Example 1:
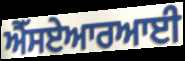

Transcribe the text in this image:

ਐੱਸਏਆਰਆਈ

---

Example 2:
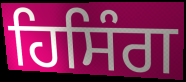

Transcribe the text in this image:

ਹਿਸਿੰਗ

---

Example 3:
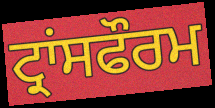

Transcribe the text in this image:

ਟ੍ਰਾਂਸਫੌਰਮ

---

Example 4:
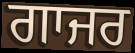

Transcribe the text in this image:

ਗਾਜਰ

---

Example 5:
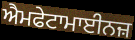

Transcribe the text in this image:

ਐਮਫੇਟਾਮਾਈਨਜ਼